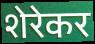
शेरेकर